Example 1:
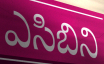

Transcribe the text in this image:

ఎసిబిని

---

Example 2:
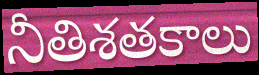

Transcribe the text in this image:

నీతిశతకాలు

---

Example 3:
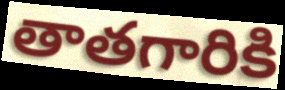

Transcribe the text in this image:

తాతగారికి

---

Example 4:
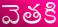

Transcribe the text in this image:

వెతకి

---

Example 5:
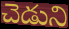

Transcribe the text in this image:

చెడుని